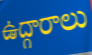
ఉద్గారాలు